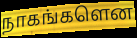
நாகங்களென